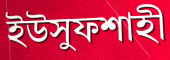
ইউসুফশাহী